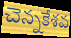
చెన్నకేశవ